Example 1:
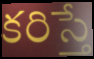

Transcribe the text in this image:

కరిస్తే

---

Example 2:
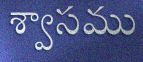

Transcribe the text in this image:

శ్వాసము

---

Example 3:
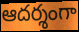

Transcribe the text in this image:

ఆదర్శంగా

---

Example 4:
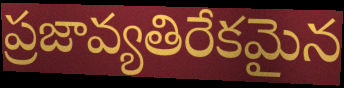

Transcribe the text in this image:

ప్రజావ్యతిరేకమైన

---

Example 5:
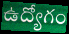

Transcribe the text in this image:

ఉద్యోగం